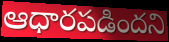
ఆధారపడిందని